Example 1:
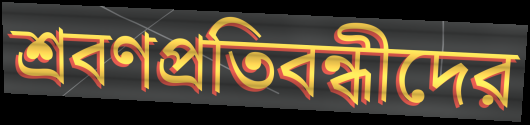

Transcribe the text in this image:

শ্রবণপ্রতিবন্ধীদের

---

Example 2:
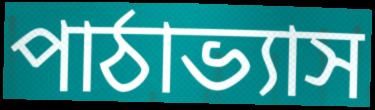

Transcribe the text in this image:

পাঠাভ্যাস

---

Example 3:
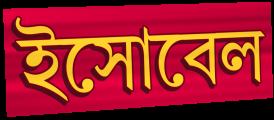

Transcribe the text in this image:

ইসোবেল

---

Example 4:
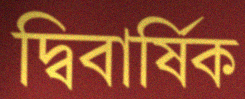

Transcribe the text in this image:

দ্বিবার্ষিক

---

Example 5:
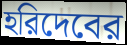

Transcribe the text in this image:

হরিদেবের